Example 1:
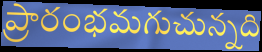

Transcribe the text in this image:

ప్రారంభమగుచున్నది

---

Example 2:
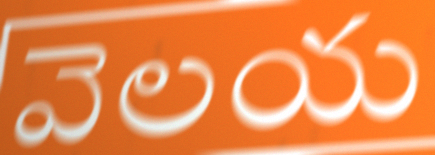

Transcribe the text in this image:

వెలయ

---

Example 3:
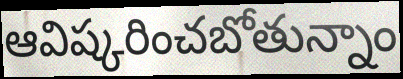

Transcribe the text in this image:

ఆవిష్కరించబోతున్నాం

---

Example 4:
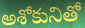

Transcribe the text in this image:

అశోకునితో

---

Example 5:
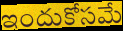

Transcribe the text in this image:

ఇందుకోసమే